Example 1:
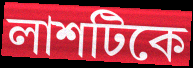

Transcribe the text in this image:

লাশটিকে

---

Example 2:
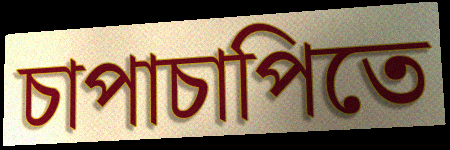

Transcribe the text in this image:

চাপাচাপিতে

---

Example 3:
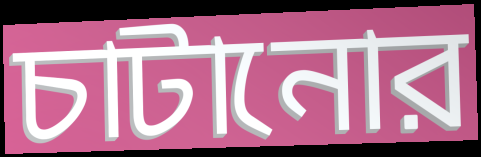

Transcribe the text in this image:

চাটানোর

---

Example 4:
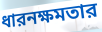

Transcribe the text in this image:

ধারনক্ষমতার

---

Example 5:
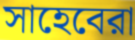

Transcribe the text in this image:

সাহেবেরা